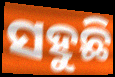
ସହୁଛି